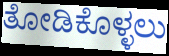
ತೋಡಿಕೊಳ್ಳಲು